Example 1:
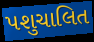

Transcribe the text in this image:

પશુચાલિત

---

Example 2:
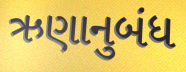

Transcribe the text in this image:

ઋણાનુબંધ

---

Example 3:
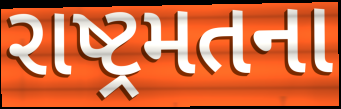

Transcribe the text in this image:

રાષ્ટ્રમતના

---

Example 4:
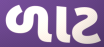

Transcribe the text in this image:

ળાટ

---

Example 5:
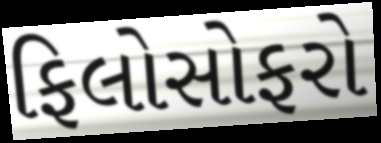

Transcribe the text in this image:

ફિલોસોફરો